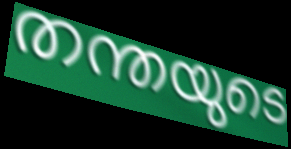
തന്തയുടെ